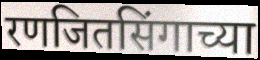
रणजितसिंगाच्या